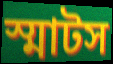
স্মাটস